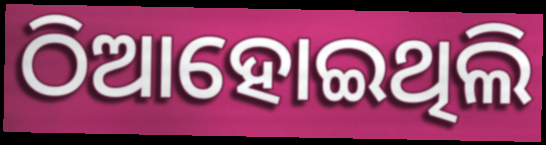
ଠିଆହୋଇଥିଲି